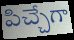
పిచ్చేగా